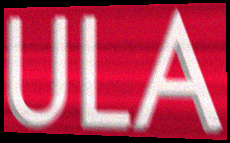
ULA